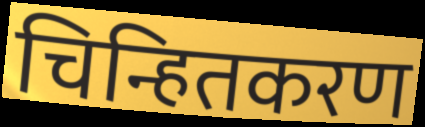
चिन्हितकरण